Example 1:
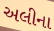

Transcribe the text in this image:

અલીના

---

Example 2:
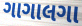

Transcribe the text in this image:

ગાગાલગા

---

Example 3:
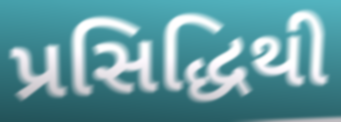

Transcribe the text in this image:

પ્રસિદ્ધિથી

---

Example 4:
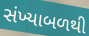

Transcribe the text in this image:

સંખ્યાબળથી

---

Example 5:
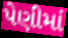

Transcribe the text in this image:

પેણીમાં